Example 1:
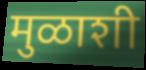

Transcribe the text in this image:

मुळाशी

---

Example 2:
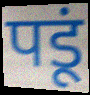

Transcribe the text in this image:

पडूं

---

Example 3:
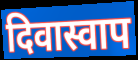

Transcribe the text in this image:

दिवास्वाप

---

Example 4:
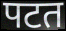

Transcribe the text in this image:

पटत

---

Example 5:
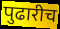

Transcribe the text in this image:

पुढारीच